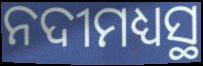
ନଦୀମଧ୍ୟସ୍ଥ